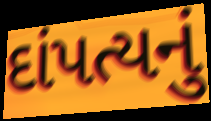
દાંપત્યનું